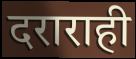
दराराही